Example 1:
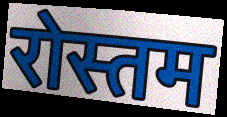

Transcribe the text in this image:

रोस्तम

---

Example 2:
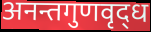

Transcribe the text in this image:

अनन्तगुणवृद्ध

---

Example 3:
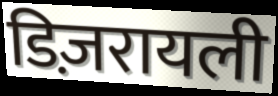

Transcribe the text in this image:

डिज़रायली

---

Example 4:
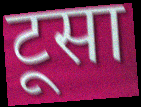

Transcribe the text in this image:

टूसा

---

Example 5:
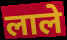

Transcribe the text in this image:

लाले